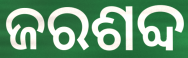
ଜରଶବ୍ଦ